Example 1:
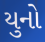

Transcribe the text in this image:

યુનો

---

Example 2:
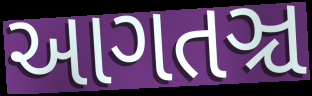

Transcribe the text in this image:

આગતઞ્ચ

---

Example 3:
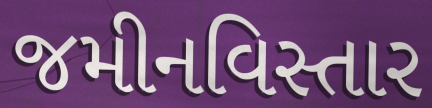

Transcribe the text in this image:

જમીનવિસ્તાર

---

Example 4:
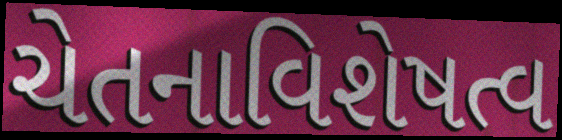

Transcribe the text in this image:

ચેતનાવિશેષત્વ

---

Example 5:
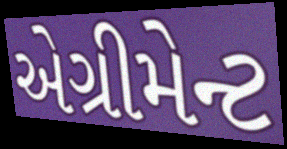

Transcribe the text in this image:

એગ્રીમેન્ટ